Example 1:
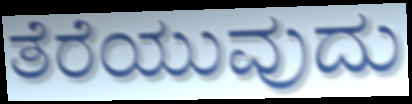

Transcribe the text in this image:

ತೆರೆಯುವುದು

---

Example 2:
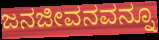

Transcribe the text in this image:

ಜನಜೀವನವನ್ನೂ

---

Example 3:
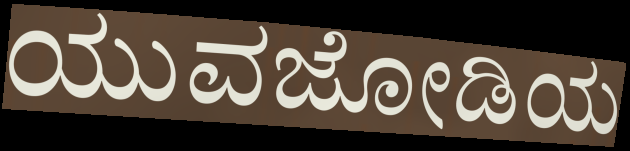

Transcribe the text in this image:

ಯುವಜೋಡಿಯ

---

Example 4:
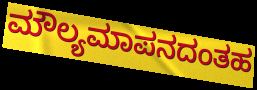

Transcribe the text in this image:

ಮೌಲ್ಯಮಾಪನದಂತಹ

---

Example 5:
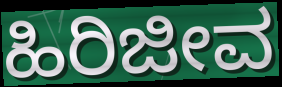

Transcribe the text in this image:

ಹಿರಿಜೀವ